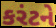
કરંટને